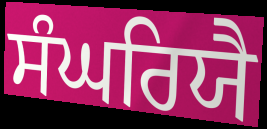
ਸੰਘਰਿਯੈ